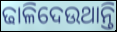
ଢାଳିଦେଉଥାନ୍ତି